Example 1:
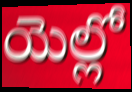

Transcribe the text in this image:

యెల్లో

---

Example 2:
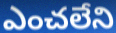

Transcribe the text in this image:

ఎంచలేని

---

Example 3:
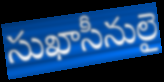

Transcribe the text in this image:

సుఖాసీనులై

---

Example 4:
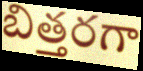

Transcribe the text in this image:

బిత్తరగా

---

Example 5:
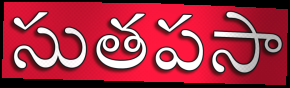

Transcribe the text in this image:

సుతపసా